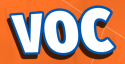
voc